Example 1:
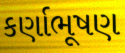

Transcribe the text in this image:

કર્ણાભૂષણ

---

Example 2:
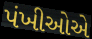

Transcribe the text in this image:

પંખીઓએ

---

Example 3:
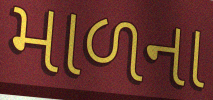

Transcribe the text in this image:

માળના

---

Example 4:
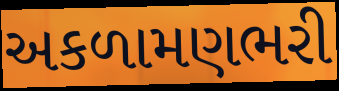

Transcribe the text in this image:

અકળામણભરી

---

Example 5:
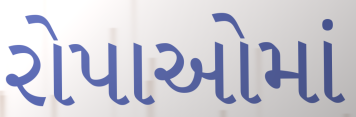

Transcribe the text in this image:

રોપાઓમાં